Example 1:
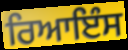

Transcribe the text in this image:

ਰਿਆਇੰਸ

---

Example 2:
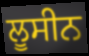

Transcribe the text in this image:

ਲੂਸੀਨ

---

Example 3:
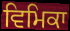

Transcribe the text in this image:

ਵਿਮਿਕਾ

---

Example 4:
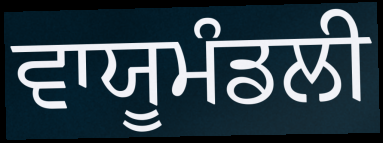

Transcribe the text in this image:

ਵਾਯੂਮੰਡਲੀ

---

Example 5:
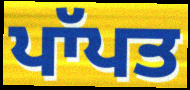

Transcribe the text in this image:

ਪਾੱਪਤ